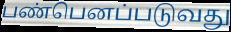
பண்பெனப்படுவது